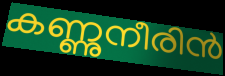
കണ്ണുനീരിൻ